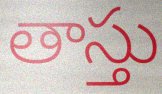
తాస్తు